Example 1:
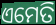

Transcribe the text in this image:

ଏମେତି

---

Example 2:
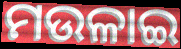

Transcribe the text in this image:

ମଉଳାଇ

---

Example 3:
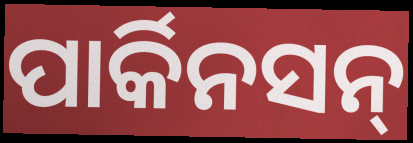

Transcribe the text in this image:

ପାର୍କିନସନ୍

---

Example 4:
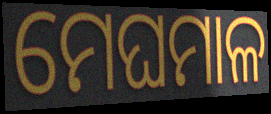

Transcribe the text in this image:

ମେଘମାଳ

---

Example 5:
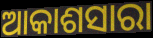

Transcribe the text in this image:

ଆକାଶସାରା